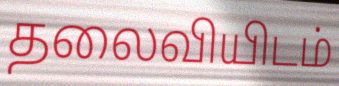
தலைவியிடம்